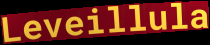
Leveillula